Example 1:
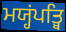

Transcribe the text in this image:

ਮਯ੍ਹਂਪਤ੍ਥਿ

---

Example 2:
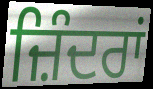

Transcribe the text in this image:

ਜ਼ਿੰਦਰਾਂ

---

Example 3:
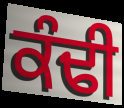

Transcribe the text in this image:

ਕੰਢੀ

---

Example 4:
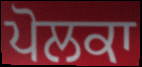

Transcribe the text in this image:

ਪੋਲਕਾ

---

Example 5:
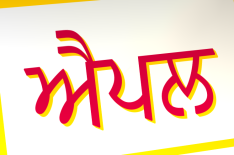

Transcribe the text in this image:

ਐਪਲ